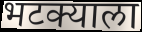
भटक्याला